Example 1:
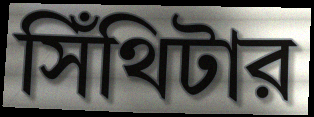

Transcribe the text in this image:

সিঁথিটার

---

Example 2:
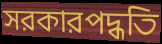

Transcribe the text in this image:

সরকারপদ্ধতি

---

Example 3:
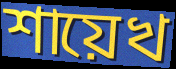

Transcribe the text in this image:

শায়েখ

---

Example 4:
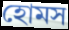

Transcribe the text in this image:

হোমস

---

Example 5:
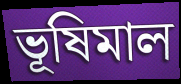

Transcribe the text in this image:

ভূষিমাল